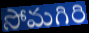
సోమగిరి